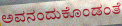
ಅವನಂದುಕೊಂಡಂತೆ